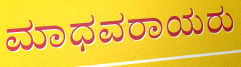
ಮಾಧವರಾಯರು